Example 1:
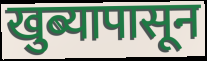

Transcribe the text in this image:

खुब्यापासून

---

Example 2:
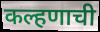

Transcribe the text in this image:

कल्हणाची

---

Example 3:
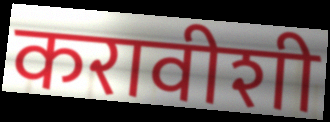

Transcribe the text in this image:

करावीशी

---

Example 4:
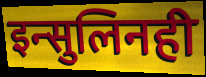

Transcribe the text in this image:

इन्सुलिनही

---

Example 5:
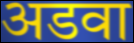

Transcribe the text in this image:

अडवा